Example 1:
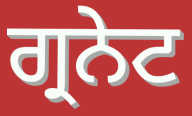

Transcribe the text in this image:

ਗ੍ਰਨੇਟ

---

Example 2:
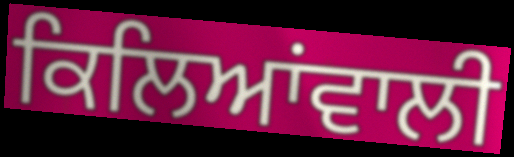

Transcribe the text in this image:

ਕਿਲਿਆਂਵਾਲੀ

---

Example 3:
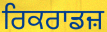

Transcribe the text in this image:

ਰਿਕਰਾਡਜ਼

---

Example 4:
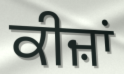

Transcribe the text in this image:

ਕੀਜ਼ਾਂ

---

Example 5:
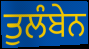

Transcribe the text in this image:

ਤੁਲੰਬੇਨ